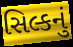
સિલ્કનું